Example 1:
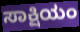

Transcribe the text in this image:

ಸಾಕ್ಷಿಯಂ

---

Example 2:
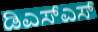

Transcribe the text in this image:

ಡಿಎಸ್ಎಸ್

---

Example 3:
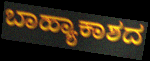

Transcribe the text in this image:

ಬಾಹ್ಯಾಕಾಶದ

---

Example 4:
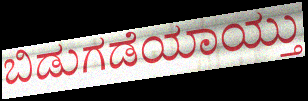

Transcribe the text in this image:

ಬಿಡುಗಡೆಯಾಯ್ತು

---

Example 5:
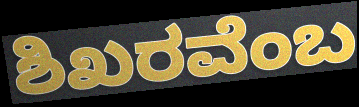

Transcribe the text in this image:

ಶಿಖರವೆಂಬ